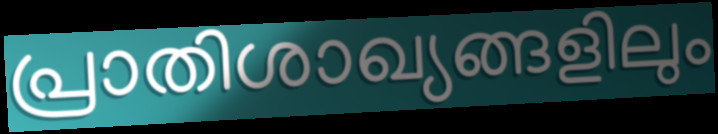
പ്രാതിശാഖ്യങ്ങളിലും